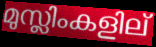
മുസ്ലിംകളില്